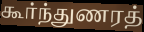
கூர்ந்துணரத்